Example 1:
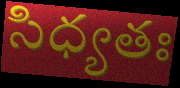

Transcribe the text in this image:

సిధ్యతః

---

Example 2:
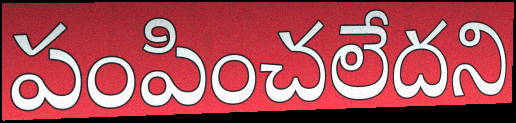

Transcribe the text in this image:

పంపించలేదని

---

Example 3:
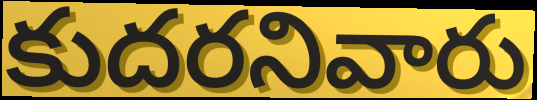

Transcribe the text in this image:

కుదరనివారు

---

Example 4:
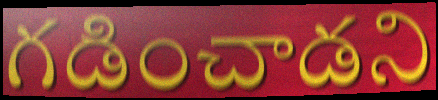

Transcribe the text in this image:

గడించాడని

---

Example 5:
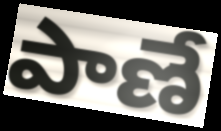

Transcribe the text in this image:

పాణే